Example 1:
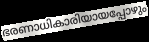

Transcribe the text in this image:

ഭരണാധികാരിയായപ്പോഴും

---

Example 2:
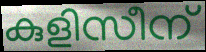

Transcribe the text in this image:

കുളിസീന്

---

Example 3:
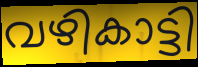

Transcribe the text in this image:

വഴികാട്ടി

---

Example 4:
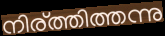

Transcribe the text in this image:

നിര്ത്തിത്തന്നു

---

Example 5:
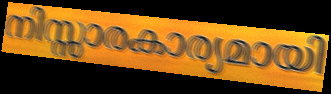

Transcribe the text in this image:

നിസ്സാരകാര്യമായി